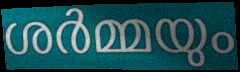
ശർമ്മയും